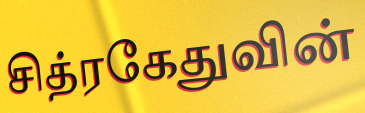
சித்ரகேதுவின்